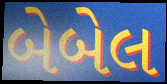
બેબેલ